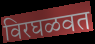
विरघळवत